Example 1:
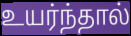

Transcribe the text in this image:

உயர்ந்தால்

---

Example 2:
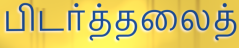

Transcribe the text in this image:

பிடர்த்தலைத்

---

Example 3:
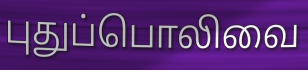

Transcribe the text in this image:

புதுப்பொலிவை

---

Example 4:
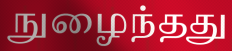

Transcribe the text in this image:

நுழைந்தது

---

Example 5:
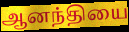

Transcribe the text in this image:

ஆனந்தியை